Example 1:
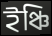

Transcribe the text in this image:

ইঞ্চি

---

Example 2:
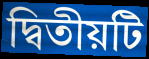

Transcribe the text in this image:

দ্বিতীয়টি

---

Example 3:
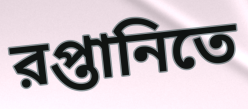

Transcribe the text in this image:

রপ্তানিতে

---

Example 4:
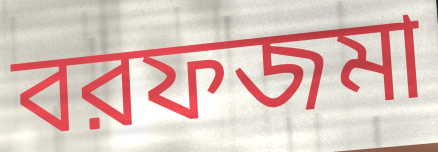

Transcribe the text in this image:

বরফজমা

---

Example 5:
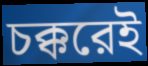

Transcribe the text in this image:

চক্করেই